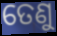
ତେଣୁ